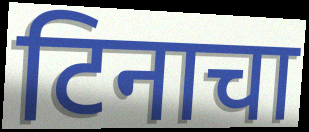
टिनाचा